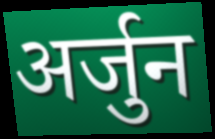
अर्जुन